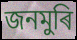
জনমুৰি